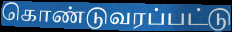
கொண்டுவரப்பட்டு